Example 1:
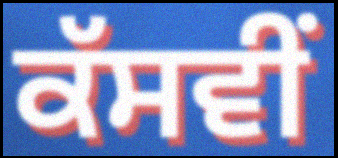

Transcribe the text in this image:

ਕੱਸਵੀਂ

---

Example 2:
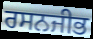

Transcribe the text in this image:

ਰਸਨਜੀਭ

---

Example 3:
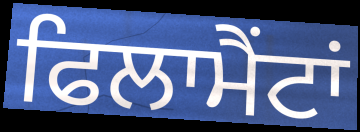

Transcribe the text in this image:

ਫਿਲਾਮੈਂਟਾਂ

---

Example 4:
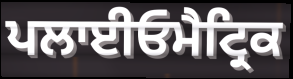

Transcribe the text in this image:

ਪਲਾਈਓਮੈਟ੍ਰਿਕ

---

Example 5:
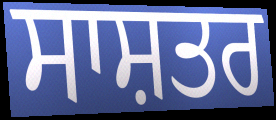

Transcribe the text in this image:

ਸਾਸ਼ਤਰ